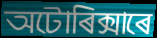
অটোৰিক্সাৰে